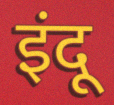
इंदू